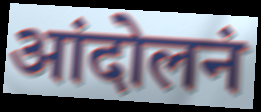
आंदोलनं